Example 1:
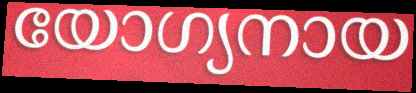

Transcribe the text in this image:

യോഗ്യനായ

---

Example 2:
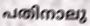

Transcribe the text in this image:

പതിനാലു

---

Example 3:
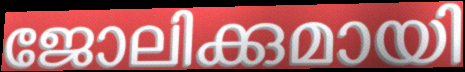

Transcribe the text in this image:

ജോലിക്കുമായി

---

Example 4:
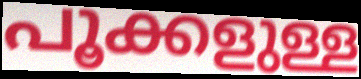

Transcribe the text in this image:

പൂക്കളുള്ള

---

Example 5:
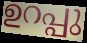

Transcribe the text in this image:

ഉറപ്പു